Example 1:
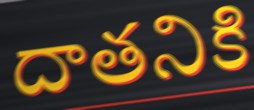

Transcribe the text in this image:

దాతనికి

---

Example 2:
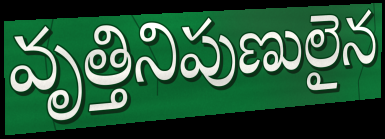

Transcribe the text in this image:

వృత్తినిపుణులైన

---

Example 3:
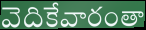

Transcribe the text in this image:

వెదికేవారంతా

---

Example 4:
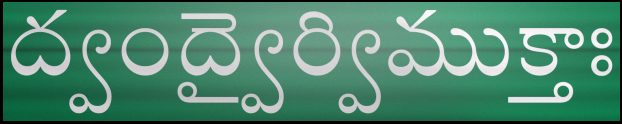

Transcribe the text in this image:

ద్వంద్వైర్విముక్తాః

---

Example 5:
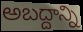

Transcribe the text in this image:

అబద్దాన్ని